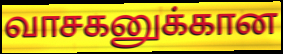
வாசகனுக்கான